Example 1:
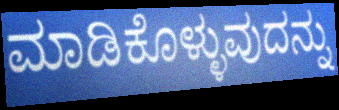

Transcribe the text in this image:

ಮಾಡಿಕೊಳ್ಳುವುದನ್ನು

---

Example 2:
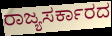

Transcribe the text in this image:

ರಾಜ್ಯಸರ್ಕಾರದ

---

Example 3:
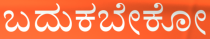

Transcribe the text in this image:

ಬದುಕಬೇಕೋ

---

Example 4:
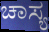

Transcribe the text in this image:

ಚಾಸ್ಯ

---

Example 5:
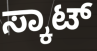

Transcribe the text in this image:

ಸ್ಕಾಟ್